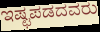
ಇಷ್ಟಪಡದವರು